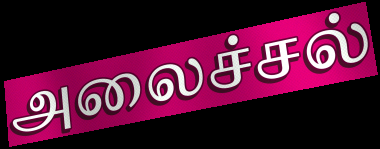
அலைச்சல்